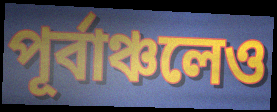
পূর্বাঞ্চলেও